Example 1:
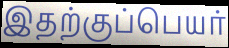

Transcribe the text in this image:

இதற்குப்பெயர்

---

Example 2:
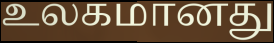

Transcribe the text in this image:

உலகமானது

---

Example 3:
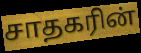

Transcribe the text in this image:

சாதகரின்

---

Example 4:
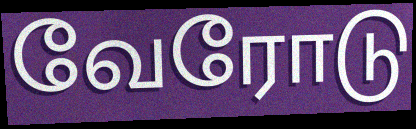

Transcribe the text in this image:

வேரோடு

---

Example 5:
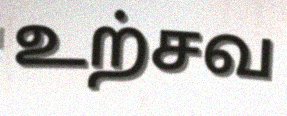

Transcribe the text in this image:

உற்சவ